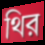
থির